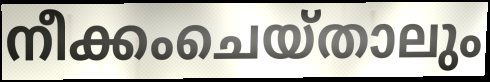
നീക്കംചെയ്താലും